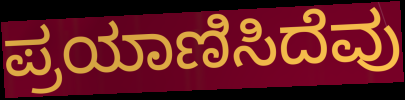
ಪ್ರಯಾಣಿಸಿದೆವು